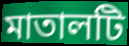
মাতালটি